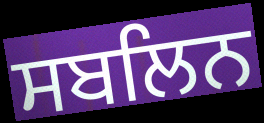
ਸਬਲਿਨ